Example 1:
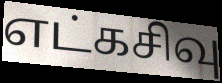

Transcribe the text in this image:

எட்கசிவு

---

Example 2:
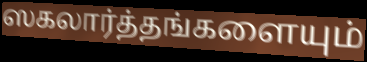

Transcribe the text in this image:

ஸகலார்த்தங்களையும்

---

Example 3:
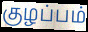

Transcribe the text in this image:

குழப்பம்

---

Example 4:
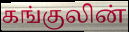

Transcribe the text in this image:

கங்குலின்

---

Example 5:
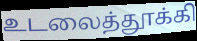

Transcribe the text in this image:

உடலைத்தூக்கி